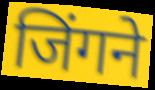
जिंगने